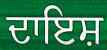
ਦਾਇਸ਼